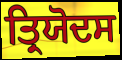
ਤ੍ਰਿਯੋਦਸ